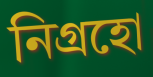
নিগ্রহো